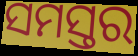
ସମସ୍ତର